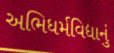
અભિધર્મવિદ્યાનું